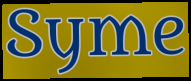
Syme